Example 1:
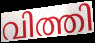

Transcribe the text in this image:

വിത്തി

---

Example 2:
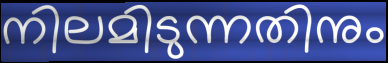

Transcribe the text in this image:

നിലമിടുന്നതിനും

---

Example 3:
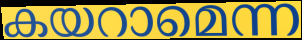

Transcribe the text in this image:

കയറാമെന്ന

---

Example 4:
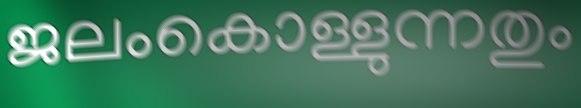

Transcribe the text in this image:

ജലംകൊള്ളുന്നതും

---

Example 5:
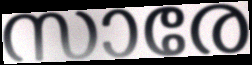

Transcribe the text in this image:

സാരേ